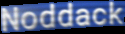
Noddack